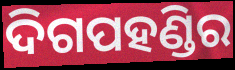
ଦିଗପହଣ୍ଡିର